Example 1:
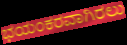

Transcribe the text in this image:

ಭಯಂಕರವಾಗಿರಲು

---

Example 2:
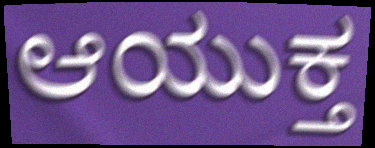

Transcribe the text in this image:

ಆಯುಕ್ತ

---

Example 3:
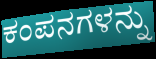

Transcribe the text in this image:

ಕಂಪನಗಳನ್ನು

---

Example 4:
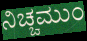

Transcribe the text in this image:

ನಿಚ್ಚಮುಂ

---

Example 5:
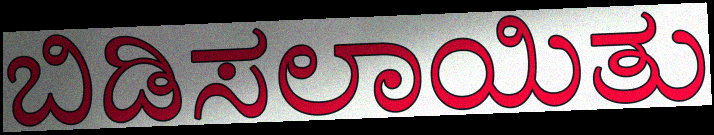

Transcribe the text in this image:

ಬಿಡಿಸಲಾಯಿತು